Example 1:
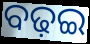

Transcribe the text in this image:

ବଢ଼ଇ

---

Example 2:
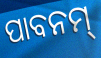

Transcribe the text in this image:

ପାବନମ୍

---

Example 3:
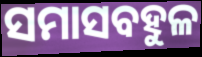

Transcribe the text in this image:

ସମାସବହୁଳ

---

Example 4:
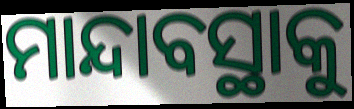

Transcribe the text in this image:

ମାନ୍ଦାବସ୍ଥାକୁ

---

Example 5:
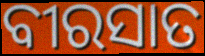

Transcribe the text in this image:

ବୀରସାତ